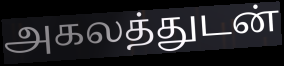
அகலத்துடன்